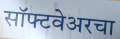
सॉफ्टवेअरचा